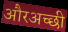
औरअच्छी